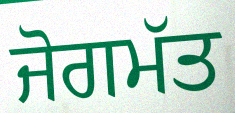
ਜੋਗਮੱਤ